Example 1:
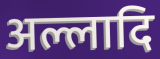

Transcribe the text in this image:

अल्लादि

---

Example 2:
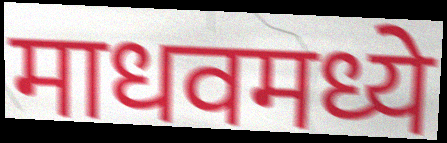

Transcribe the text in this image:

माधवमध्ये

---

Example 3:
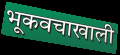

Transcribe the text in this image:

भूकवचाखाली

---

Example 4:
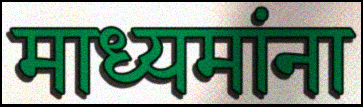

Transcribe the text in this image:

माध्यमांना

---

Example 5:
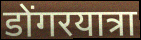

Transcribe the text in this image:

डोंगरयात्रा